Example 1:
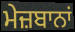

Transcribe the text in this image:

ਮੇਜ਼ਬਾਨਾਂ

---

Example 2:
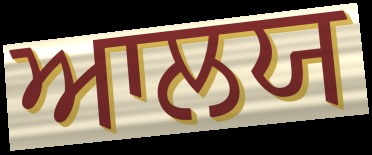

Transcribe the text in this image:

ਆਲਯ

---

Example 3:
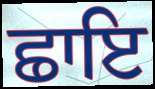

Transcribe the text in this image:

ਛਾਇ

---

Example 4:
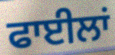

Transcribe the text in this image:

ਫਾਈਲਾਂ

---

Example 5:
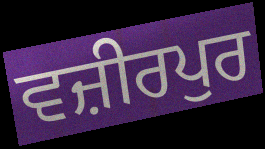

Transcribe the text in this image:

ਵਜ਼ੀਰਪੁਰ